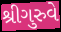
શ્રીગુરુવે